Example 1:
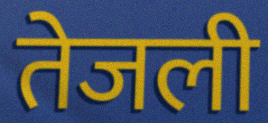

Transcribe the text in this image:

तेजली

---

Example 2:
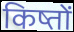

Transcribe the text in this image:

किष्तों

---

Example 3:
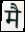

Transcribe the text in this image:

मै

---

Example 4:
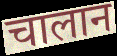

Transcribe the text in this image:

चालान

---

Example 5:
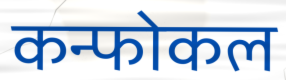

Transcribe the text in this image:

कन्फोकल